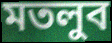
মতলুব